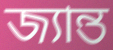
জ্যান্ত